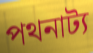
পথনাট্য